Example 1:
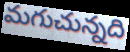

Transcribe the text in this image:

మగుచున్నది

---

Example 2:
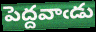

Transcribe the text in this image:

పెద్దవాఁడు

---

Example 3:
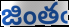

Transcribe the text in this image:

జింతఁ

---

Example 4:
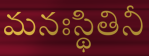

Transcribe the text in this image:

మనఃస్థితినీ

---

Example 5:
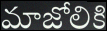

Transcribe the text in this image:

మాజోలికి